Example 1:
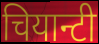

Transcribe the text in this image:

चियान्टी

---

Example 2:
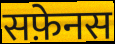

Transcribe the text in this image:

सफ़ेनस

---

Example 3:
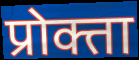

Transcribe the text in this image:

प्रोक्ता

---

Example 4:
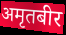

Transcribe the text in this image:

अमृतबीर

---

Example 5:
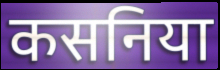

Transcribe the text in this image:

कसनिया